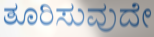
ತೂರಿಸುವುದೇ